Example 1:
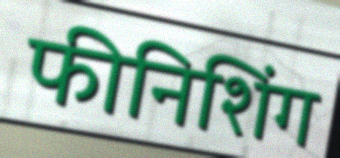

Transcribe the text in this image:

फीनिशिंग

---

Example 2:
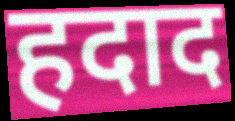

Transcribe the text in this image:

हदाद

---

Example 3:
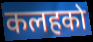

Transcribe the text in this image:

कलहको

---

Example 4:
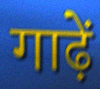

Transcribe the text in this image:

गाढ़ें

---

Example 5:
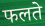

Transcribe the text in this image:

फलते